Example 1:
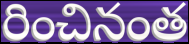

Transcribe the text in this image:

రించినంత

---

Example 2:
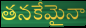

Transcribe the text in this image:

తనకేమైనా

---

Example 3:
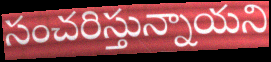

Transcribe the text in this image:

సంచరిస్తున్నాయని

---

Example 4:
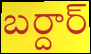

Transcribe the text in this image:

బర్దార్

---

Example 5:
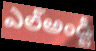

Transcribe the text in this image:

ఎల్అండ్టీ